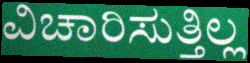
ವಿಚಾರಿಸುತ್ತಿಲ್ಲ